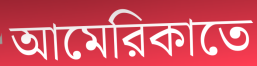
আমেরিকাতে